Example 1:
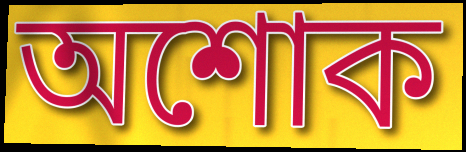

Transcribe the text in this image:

অশোক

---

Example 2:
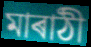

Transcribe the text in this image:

মাৰাঠী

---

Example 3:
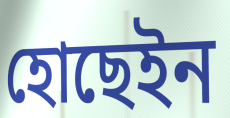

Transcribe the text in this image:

হোছেইন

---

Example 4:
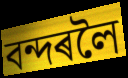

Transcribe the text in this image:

বন্দৰলৈ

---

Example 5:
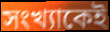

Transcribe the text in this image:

সংখ্যাকেই